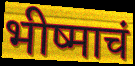
भीष्माचं